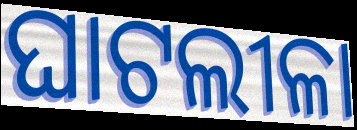
ଘାଟଲୀଳା